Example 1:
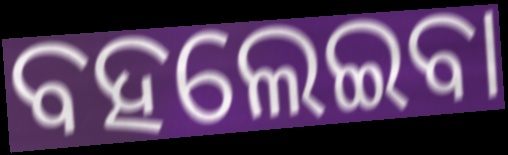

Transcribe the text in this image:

ବହଲେଇବା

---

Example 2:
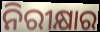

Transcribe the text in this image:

ନିରୀକ୍ଷାର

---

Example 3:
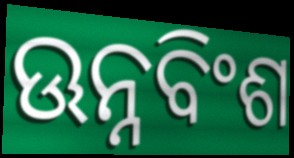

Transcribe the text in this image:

ଊନ୍ନବିଂଶ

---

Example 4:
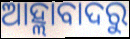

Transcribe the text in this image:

ଆହ୍ଲାବାଦରୁ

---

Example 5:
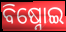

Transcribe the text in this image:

ବିଷ୍ନୋଇ